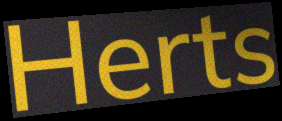
Herts